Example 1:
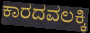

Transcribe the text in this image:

ಕಾರದವಲಕ್ಕಿ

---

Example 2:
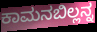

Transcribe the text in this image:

ಕಾಮನಬಿಲ್ಲನ್ನ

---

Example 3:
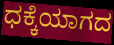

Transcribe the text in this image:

ಧಕ್ಕೆಯಾಗದ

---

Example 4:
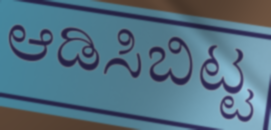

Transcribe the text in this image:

ಆಡಿಸಿಬಿಟ್ಟ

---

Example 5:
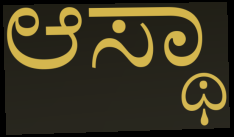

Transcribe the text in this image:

ಆಸ್ಥಾ